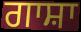
ਗਾਸ਼ਾ